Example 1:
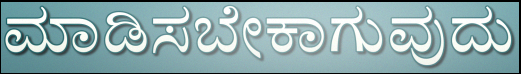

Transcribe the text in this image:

ಮಾಡಿಸಬೇಕಾಗುವುದು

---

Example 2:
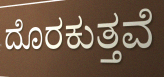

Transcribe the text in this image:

ದೊರಕುತ್ತವೆ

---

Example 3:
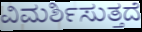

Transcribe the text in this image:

ವಿಮರ್ಶಿಸುತ್ತದೆ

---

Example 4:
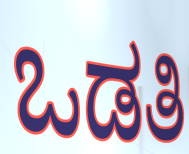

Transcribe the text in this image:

ಒಡತಿ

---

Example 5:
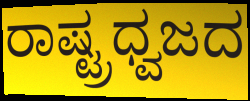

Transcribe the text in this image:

ರಾಷ್ಟ್ರಧ್ವಜದ